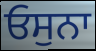
ਓਸੁਨਾ